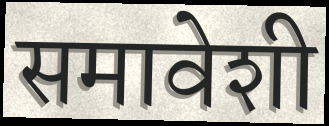
समावेशी